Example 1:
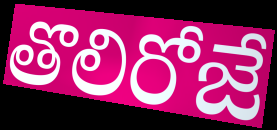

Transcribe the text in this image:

తొలిరోజే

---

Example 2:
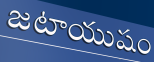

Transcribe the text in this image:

జటాయుషం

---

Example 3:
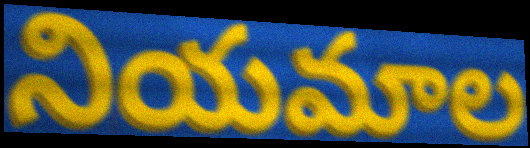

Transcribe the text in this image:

నియమాల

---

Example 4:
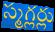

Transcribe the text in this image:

స్మగ్లర్లు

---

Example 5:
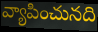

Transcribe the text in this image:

వ్యాపించునది